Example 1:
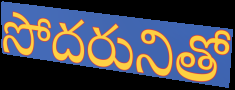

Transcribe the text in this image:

సోదరునితో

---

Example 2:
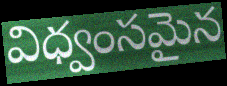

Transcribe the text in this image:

విధ్వంసమైన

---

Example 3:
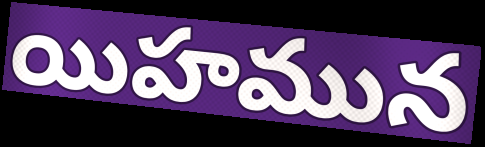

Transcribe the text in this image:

యిహమున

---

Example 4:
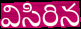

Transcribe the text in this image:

విసిరిన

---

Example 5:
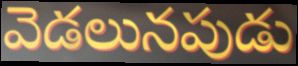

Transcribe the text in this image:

వెడలునపుడు